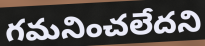
గమనించలేదని